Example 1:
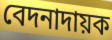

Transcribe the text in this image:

বেদনাদায়ক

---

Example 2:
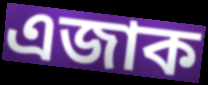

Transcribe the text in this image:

এজাক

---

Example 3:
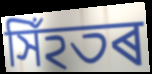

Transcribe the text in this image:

সিঁহতৰ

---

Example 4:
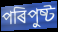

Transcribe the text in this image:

পৰিপুষ্ট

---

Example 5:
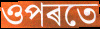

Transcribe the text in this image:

ওপৰতে